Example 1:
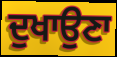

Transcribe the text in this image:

ਦੁਖਾਉਣਾ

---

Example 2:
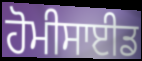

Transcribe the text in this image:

ਹੋਮੀਸਾਈਡ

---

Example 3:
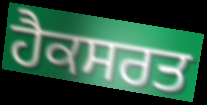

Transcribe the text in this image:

ਹੈਕਸਰਤ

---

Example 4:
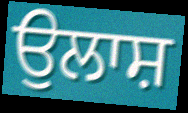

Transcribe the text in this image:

ਉਲਾਸ਼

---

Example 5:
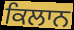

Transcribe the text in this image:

ਕਿਲਾਨ